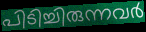
പിടിച്ചിരുന്നവർ